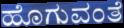
ಹೊಗುವಂತೆ